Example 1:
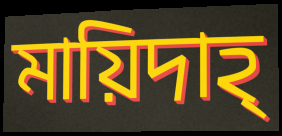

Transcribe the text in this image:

মায়িদাহ্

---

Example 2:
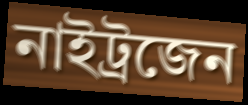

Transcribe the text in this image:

নাইট্রজেন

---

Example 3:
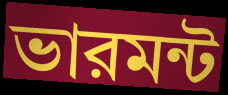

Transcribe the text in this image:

ভারমন্ট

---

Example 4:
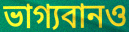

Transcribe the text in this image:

ভাগ্যবানও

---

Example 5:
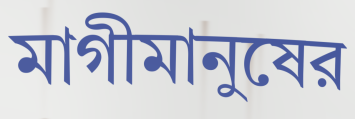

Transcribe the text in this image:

মাগীমানুষের